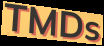
TMDs